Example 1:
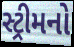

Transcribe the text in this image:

સ્ટ્રીમનો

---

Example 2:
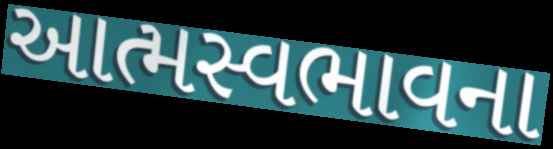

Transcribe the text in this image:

આત્મસ્વભાવના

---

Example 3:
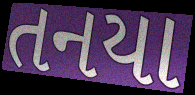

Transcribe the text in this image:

તનયા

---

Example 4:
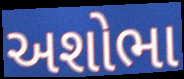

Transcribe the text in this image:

અશોભા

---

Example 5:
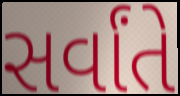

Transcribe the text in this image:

સર્વાંતે